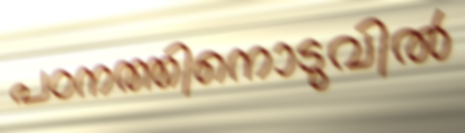
പഠനത്തിനൊടുവിൽ